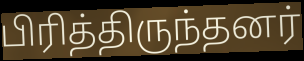
பிரித்திருந்தனர்